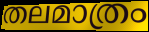
തലമാത്രം